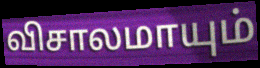
விசாலமாயும்